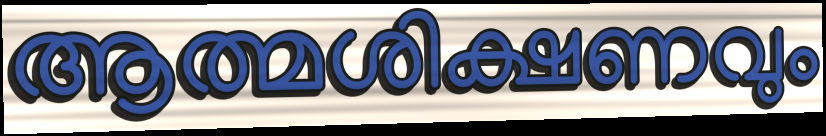
ആത്മശിക്ഷണവും